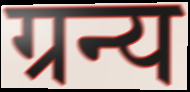
ग्रन्य